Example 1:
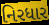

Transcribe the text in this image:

નિરધાર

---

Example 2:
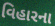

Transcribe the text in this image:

વિહારના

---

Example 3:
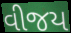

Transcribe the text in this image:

વીજય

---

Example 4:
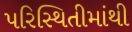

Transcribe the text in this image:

પરિસ્થિતીમાંથી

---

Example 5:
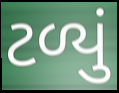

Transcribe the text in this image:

ટળ્યું